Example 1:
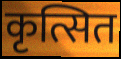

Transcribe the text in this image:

कृत्सित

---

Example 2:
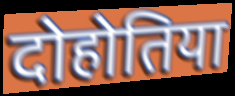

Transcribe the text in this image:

दोहोतिया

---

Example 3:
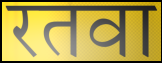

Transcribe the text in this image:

रतवा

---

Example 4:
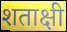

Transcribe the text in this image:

शताक्षी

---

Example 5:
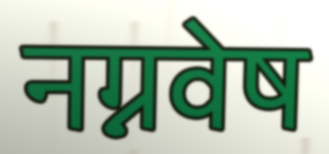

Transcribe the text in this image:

नग्नवेष